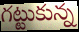
గట్టుకున్న